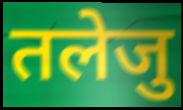
तलेजु